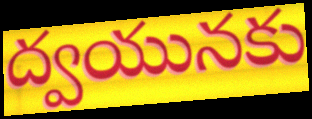
ద్వయునకు